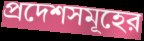
প্রদেশসমূহের